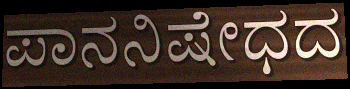
ಪಾನನಿಷೇಧದ